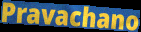
Pravachano